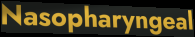
Nasopharyngeal